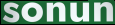
sonun